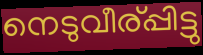
നെടുവീര്പ്പിട്ടു